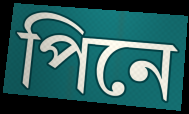
পিনে